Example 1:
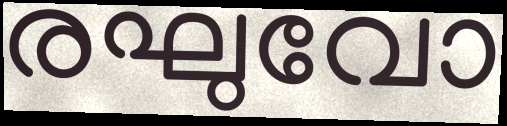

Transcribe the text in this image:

രഘുവോ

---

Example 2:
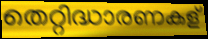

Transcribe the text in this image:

തെറ്റിദ്ധാരണകള്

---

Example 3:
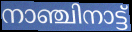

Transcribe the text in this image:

നാഞ്ചിനാട്ട്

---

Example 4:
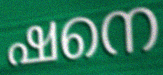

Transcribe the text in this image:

ഷനെ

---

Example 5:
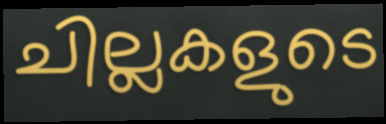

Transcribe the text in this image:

ചില്ലകളുടെ